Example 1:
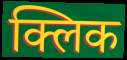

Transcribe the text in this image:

क्लिक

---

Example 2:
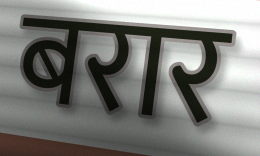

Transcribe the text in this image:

बरार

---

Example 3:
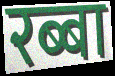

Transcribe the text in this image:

रब्बा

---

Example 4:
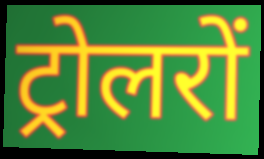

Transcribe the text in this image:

ट्रोलरों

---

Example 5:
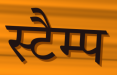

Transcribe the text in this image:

स्टैम्प